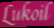
Lukoil